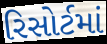
રિસોર્ટમાં